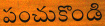
పంచుకొండి